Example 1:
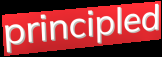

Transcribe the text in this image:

principled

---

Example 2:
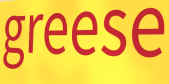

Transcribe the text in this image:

greese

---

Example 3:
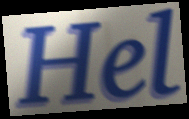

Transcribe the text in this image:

Hel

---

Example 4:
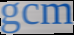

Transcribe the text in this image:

gcm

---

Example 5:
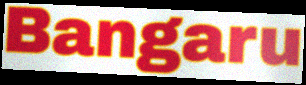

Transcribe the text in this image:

Bangaru